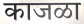
काजळा